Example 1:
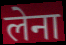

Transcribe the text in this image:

लेना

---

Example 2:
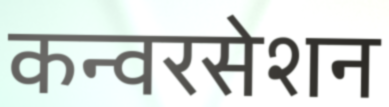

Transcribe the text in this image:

कन्वरसेशन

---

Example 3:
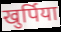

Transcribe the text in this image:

खुर्पिया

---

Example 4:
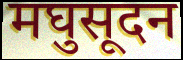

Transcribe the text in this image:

मघुसूदन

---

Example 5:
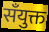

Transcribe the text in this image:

सँयुक्त